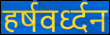
हर्षवर्ध्दन